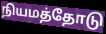
நியமத்தோடு